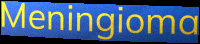
Meningioma